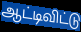
ஆட்டிவிட்டு